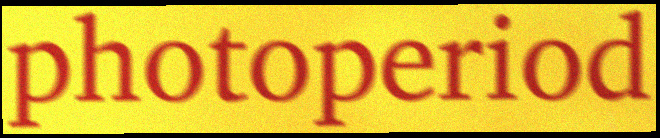
photoperiod